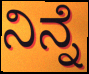
ನಿನ್ನೆ